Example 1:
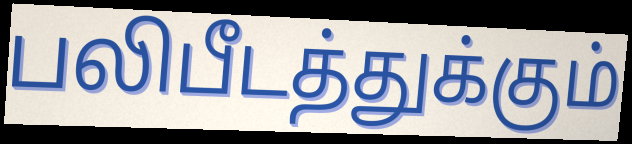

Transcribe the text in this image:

பலிபீடத்துக்கும்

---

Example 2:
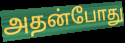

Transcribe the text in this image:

அதன்போது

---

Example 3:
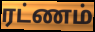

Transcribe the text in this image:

ரட்ணம்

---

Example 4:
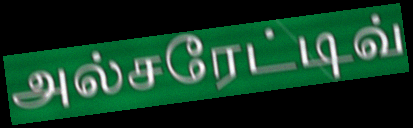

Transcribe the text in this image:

அல்சரேட்டிவ்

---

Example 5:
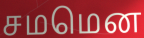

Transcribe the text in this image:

சமமென